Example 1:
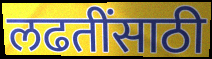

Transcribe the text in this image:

लढतींसाठी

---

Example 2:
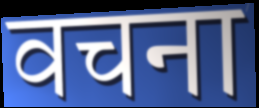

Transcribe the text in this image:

वचना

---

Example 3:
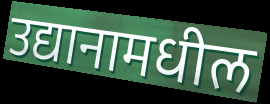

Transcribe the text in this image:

उद्यानामधील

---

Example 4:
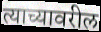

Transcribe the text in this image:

त्याच्यावरील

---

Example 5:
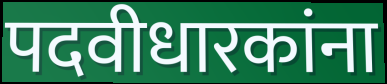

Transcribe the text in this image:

पदवीधारकांना